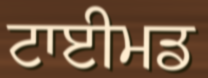
ਟਾਈਮਡ